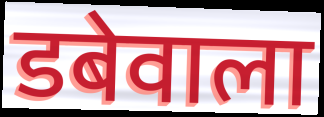
डबेवाला